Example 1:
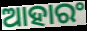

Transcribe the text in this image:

ଆହାରଂ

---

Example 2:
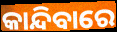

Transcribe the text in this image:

କାନ୍ଦିବାରେ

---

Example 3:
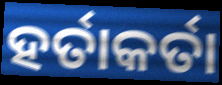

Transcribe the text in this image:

ହର୍ତାକର୍ତା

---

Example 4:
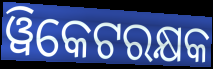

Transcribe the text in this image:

ୱିକେଟରକ୍ଷକ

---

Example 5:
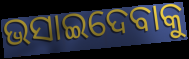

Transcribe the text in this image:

ଭସାଇଦେବାକୁ